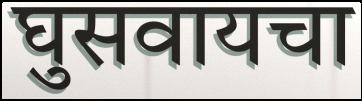
घुसवायचा